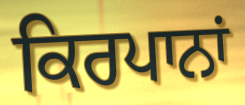
ਕਿਰਪਾਨਾਂ